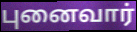
புனைவார்